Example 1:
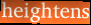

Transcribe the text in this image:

heightens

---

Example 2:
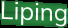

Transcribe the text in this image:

Liping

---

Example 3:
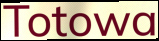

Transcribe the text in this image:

Totowa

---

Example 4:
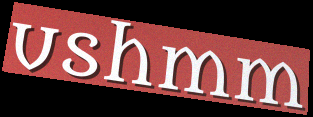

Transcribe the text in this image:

ushmm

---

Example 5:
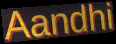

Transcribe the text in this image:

Aandhi